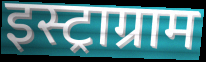
इस्ट्राग्राम